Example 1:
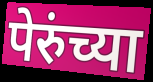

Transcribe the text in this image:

पेरुंच्या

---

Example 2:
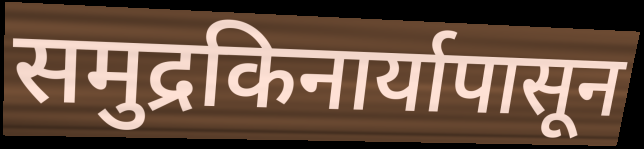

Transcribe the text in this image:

समुद्रकिनार्यापासून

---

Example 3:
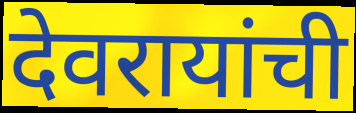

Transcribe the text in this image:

देवरायांची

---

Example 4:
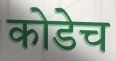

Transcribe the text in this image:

कोडेच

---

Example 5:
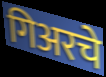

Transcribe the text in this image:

गिअरचे